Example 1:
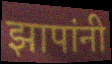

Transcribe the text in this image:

झापांनी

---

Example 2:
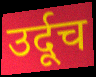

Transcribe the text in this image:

उर्दूच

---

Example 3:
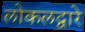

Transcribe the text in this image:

लोकलद्वारे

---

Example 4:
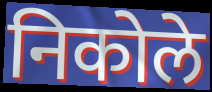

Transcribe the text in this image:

निकोले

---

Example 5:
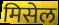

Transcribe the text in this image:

मिसेल